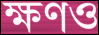
ক্ষণও